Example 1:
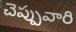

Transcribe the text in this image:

చెప్పువారి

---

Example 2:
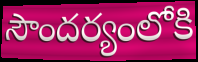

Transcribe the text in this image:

సౌందర్యంలోకి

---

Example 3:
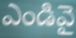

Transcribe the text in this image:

ఎండివై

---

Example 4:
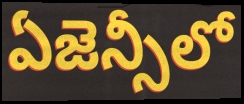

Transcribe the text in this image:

ఏజెన్సీలో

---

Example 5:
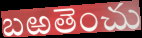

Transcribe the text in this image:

బఱతెంచు